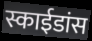
स्काईडांस